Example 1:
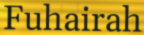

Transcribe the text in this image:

Fuhairah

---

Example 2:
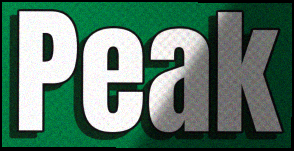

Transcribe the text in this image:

Peak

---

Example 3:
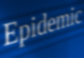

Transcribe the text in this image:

Epidemic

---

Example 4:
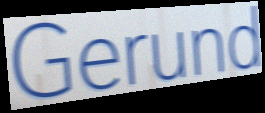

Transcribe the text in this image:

Gerund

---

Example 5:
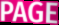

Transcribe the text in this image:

PAGE